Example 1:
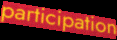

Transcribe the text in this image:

participation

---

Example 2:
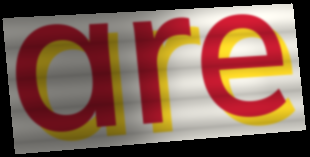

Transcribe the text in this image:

are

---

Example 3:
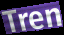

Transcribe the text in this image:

Tren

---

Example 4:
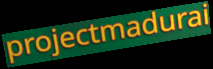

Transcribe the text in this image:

projectmadurai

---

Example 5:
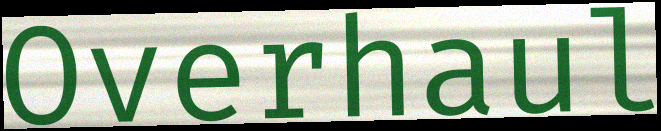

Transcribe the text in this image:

Overhaul